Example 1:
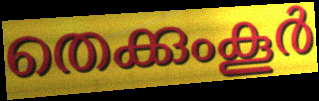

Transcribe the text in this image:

തെക്കുംകൂർ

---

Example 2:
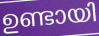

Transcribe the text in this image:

ഉണ്ടായി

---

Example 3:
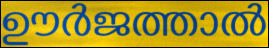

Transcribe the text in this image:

ഊർജത്താൽ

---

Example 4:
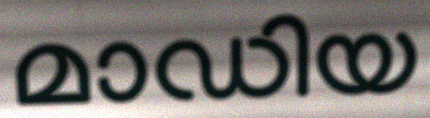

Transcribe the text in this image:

മാഡിയ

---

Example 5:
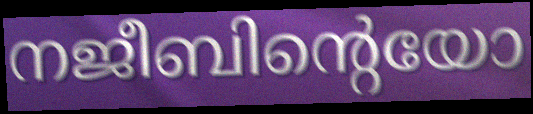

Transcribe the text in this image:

നജീബിന്റെയോ